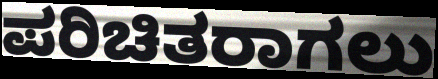
ಪರಿಚಿತರಾಗಲು